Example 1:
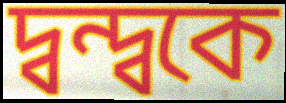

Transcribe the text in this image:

দ্বন্দ্বকে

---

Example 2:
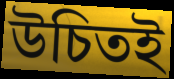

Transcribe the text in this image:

উচিতই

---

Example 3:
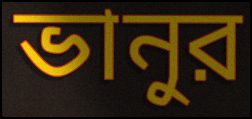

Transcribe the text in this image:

ভানুর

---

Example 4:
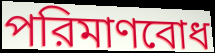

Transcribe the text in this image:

পরিমাণবোধ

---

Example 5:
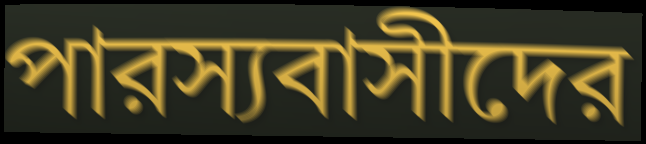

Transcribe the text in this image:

পারস্যবাসীদের